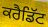
ਕਰੈਡਿੱਟ